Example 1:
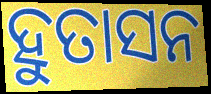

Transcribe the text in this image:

ହୁତାସନ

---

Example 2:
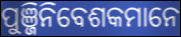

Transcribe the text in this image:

ପୁଞ୍ଜିନିବେଶକମାନେ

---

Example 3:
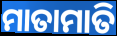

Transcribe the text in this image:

ମାତାମାତି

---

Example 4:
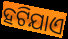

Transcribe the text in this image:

ହଟିଯାଏ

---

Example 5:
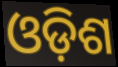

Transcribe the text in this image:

ଓଡ଼ିଶ